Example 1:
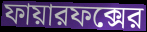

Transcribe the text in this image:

ফায়ারফক্সের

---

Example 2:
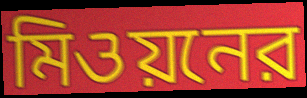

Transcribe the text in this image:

মিওয়নের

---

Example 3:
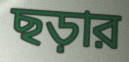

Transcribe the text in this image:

ছড়ার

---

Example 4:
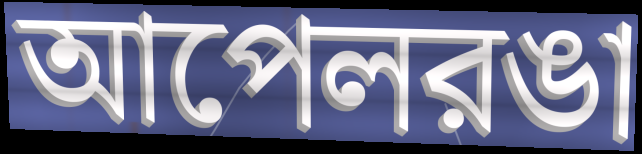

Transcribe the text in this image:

আপেলরঙা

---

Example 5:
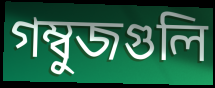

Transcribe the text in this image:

গম্বুজগুলি